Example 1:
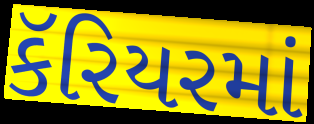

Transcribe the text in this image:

કૅરિયરમાં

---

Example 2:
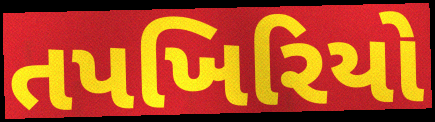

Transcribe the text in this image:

તપખિરિયો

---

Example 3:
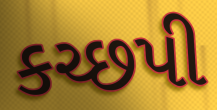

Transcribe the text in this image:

કચ્છપી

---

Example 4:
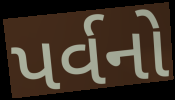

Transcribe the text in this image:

પર્વનો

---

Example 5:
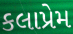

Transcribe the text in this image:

કલાપ્રેમ